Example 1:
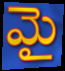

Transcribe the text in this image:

మై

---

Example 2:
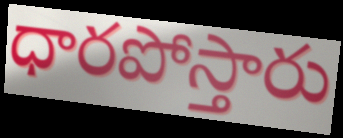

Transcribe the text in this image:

ధారపోస్తారు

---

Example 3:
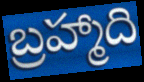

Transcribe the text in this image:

బ్రహ్మాది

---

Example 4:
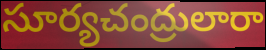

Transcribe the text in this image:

సూర్యచంద్రులారా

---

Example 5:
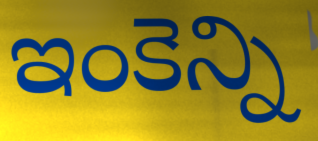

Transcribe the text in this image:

ఇంకెన్ని